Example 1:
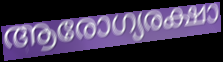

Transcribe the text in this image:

ആരോഗ്യരക്ഷാ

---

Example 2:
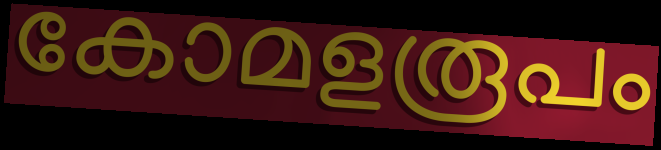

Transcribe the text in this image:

കോമളരൂപം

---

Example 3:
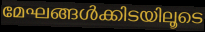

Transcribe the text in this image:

മേഘങ്ങൾക്കിടയിലൂടെ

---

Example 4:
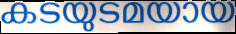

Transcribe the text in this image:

കടയുടമയായ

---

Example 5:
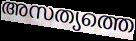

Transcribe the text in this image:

അസത്യത്തെ